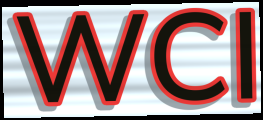
WCI